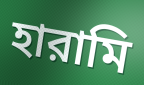
হারামি